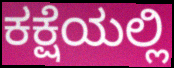
ಕಕ್ಷೆಯಲ್ಲಿ